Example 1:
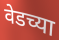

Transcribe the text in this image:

वेडच्या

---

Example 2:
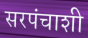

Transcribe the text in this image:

सरपंचाशी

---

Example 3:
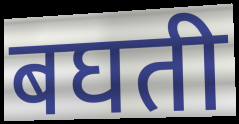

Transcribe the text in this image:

बघती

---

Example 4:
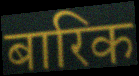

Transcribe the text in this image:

बारिक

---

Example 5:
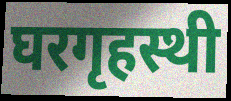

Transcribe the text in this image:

घरगृहस्थी